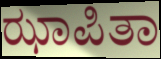
ಝಾಪಿತಾ